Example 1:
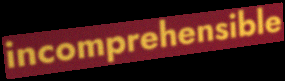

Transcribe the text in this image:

incomprehensible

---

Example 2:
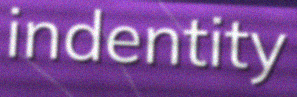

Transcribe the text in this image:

indentity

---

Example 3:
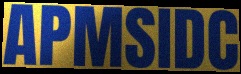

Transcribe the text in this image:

APMSIDC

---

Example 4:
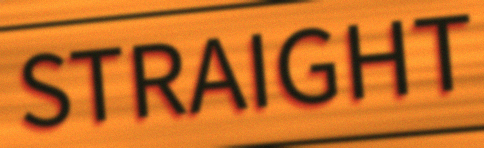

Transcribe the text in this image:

STRAIGHT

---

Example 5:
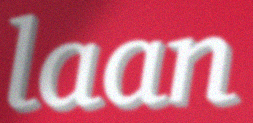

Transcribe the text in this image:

laan